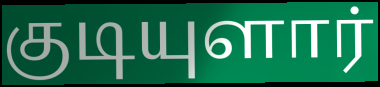
குடியுளார்